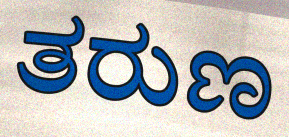
ತರುಣ